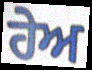
ਹੇਅ